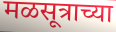
मळसूत्राच्या